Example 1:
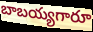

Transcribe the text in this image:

బాబయ్యగారూ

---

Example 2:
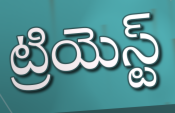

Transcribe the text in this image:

ట్రియెస్ట్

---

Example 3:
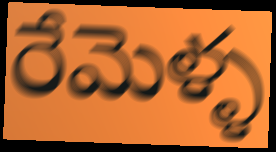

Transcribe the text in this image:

రేమెళ్ళ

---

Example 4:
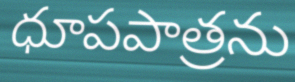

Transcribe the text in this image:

ధూపపాత్రను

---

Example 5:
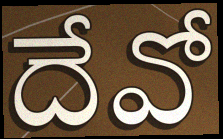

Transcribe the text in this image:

దేవో